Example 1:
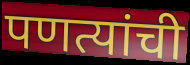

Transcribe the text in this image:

पणत्यांची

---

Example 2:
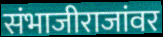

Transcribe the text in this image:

संभाजीराजांवर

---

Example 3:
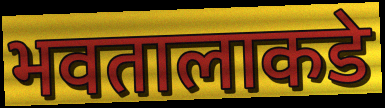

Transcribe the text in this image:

भवतालाकडे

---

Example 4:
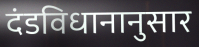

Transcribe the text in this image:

दंडविधानानुसार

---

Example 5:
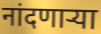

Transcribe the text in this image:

नांदणार्‍या